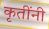
कृतींनी